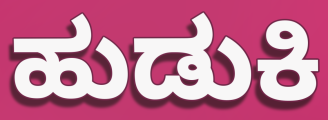
ಹುಡುಕಿ